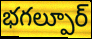
భగల్పూర్